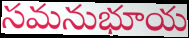
సమనుభూయ